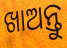
ଖାଅନ୍ତୁ